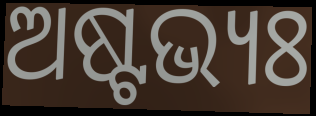
ଅଷ୍ଟଭ୍ୟଃ